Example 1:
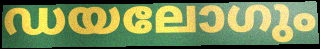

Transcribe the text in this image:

ഡയലോഗും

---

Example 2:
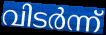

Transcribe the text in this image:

വിടർന്ന്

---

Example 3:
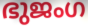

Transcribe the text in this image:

ഭുജംഗ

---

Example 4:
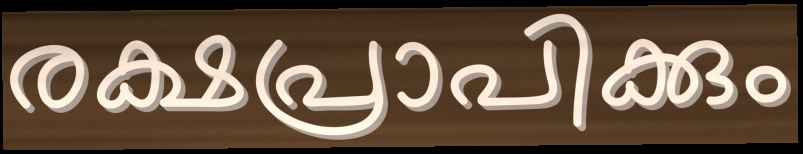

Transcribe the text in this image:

രക്ഷപ്രാപിക്കും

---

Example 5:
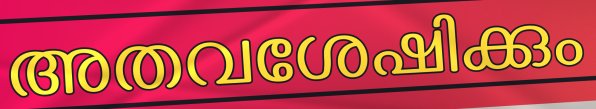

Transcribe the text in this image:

അതവശേഷിക്കും